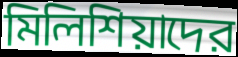
মিলিশিয়াদের